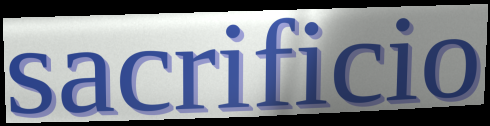
sacrificio